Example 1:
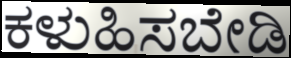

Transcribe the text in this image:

ಕಳುಹಿಸಬೇಡಿ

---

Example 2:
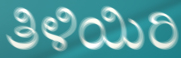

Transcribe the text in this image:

ತಿಳಿಯಿರಿ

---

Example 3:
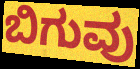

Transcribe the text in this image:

ಬಿಗುವು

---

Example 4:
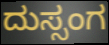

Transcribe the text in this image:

ದುಸ್ಸಂಗ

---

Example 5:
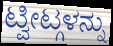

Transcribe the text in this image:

ಟ್ವೀಟ್ಗಳನ್ನು